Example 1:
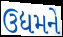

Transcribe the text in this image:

ઉદ્યમને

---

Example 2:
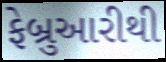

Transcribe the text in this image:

ફેબ્રુઆરીથી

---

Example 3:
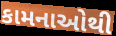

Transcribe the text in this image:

કામનાઓથી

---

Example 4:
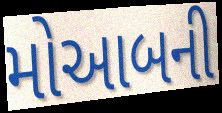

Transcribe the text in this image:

મોઆબની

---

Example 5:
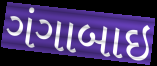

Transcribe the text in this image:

ગંગાબાઇ